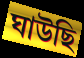
ঘাউছি